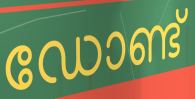
ഡോണ്ട്